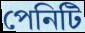
পেনিটি